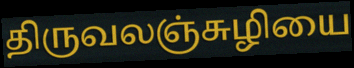
திருவலஞ்சுழியை